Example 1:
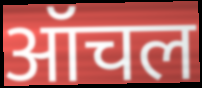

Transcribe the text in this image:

ऑचल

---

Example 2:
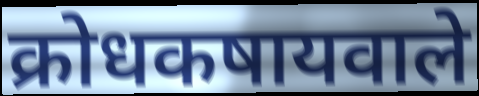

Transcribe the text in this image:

क्रोधकषायवाले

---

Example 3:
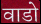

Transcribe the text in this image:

वाडो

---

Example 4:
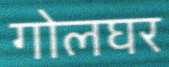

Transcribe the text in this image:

गोलघर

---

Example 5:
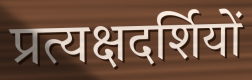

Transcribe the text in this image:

प्रत्यक्षदर्शियों